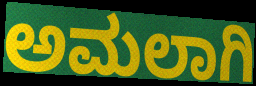
ಅಮಲಾಗಿ